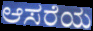
ಆಸರೆಯ